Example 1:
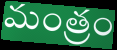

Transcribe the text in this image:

మంత్రం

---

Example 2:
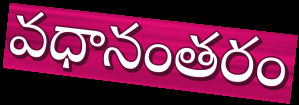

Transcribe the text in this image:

వధానంతరం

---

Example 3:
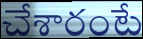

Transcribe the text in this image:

చేశారంటే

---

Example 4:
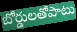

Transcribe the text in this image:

బోర్డులతోపాటు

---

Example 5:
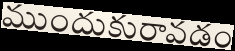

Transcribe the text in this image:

ముందుకురావడం